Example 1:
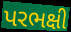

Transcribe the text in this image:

પરભક્ષી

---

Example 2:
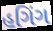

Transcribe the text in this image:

હગિંગ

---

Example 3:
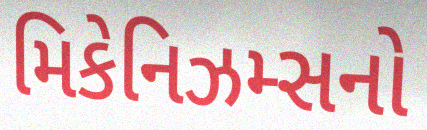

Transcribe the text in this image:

મિકેનિઝમ્સનો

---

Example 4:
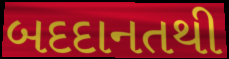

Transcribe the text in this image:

બદદાનતથી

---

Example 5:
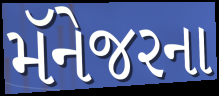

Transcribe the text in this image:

મૅનેજરના